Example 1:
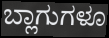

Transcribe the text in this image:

ಬ್ಲಾಗುಗಳೂ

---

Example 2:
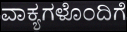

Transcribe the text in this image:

ವಾಕ್ಯಗಳೊಂದಿಗೆ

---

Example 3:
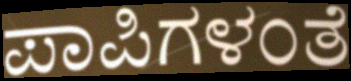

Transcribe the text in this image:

ಪಾಪಿಗಳಂತೆ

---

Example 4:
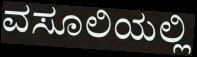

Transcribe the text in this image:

ವಸೂಲಿಯಲ್ಲಿ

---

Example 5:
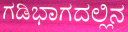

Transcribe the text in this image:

ಗಡಿಭಾಗದಲ್ಲಿನ